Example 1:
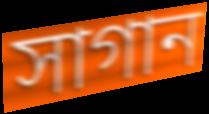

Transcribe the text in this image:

সাগান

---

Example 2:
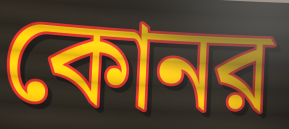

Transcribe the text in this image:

কোনর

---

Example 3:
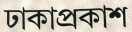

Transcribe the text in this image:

ঢাকাপ্রকাশ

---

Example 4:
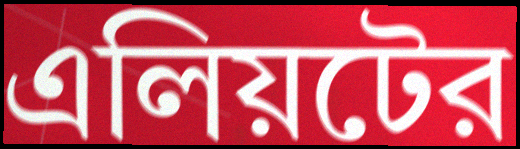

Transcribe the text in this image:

এলিয়টের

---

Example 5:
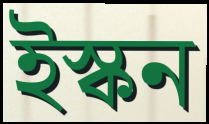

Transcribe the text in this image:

ইস্কন